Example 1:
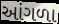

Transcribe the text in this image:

આંગળા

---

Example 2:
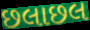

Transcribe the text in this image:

છલાછલ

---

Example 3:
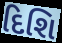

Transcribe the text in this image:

દિશિ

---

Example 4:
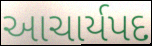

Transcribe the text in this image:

આચાર્યપદ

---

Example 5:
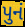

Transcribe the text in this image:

પુનં